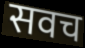
सवच